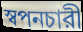
স্বপনচারী